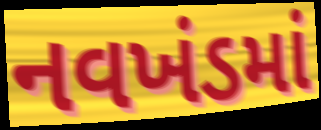
નવખંડમાં